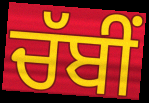
ਚੱਬੀਂ